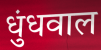
धुंधवाल